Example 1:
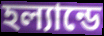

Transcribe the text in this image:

হল্যান্ডে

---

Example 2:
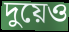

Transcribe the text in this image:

দুয়েও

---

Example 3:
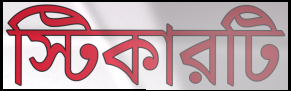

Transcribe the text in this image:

স্টিকারটি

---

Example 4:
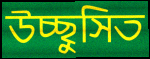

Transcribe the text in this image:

উচ্ছুসিত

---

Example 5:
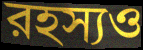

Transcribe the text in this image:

রহস্যও